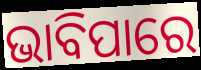
ଭାବିପାରେ